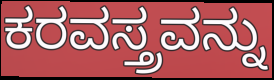
ಕರವಸ್ತ್ರವನ್ನು